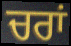
ਚਰਾਂ